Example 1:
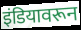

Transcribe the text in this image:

इंडियावरून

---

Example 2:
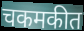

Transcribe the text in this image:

चकमकीत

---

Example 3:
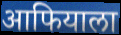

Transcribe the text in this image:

आफियाला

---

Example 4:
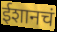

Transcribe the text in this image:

ईशानचं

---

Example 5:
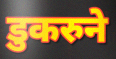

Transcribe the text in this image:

डुकरुने